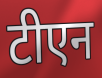
टीएन